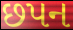
છપન